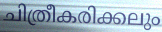
ചിത്രീകരിക്കലും